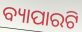
ବ୍ୟାପାରଟି